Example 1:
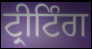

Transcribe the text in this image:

ਟ੍ਰੀਟਿੰਗ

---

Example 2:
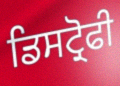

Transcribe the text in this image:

ਡਿਸਟ੍ਰੋਫੀ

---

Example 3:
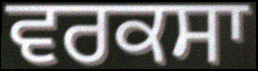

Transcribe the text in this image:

ਵਰਕਸਾ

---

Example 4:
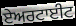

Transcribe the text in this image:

ਏਅਰਟਾਈਟ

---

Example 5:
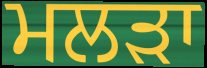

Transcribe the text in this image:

ਮਲੜਾ